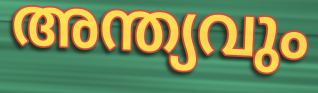
അന്ത്യവും